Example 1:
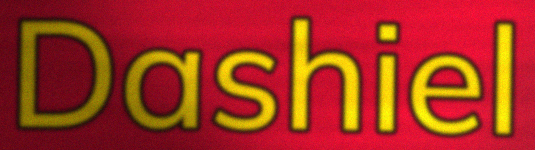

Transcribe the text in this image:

Dashiel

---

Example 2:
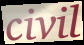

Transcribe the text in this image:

civil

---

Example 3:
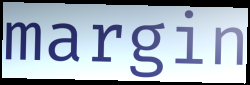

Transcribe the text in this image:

margin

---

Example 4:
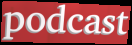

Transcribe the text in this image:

podcast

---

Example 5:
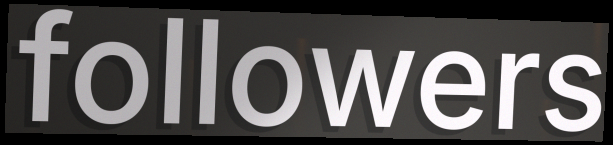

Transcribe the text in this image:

followers